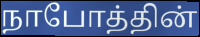
நாபோத்தின்